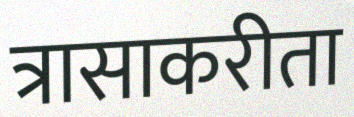
त्रासाकरीता